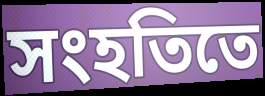
সংহতিতে